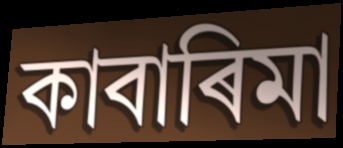
কাবাৰিমা